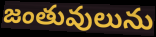
జంతువులును